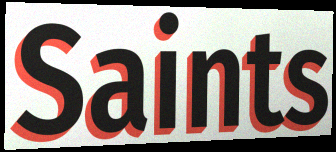
Saints